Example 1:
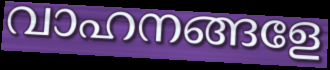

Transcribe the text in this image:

വാഹനങ്ങളേ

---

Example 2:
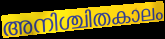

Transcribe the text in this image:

അനിശ്ചിതകാലം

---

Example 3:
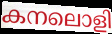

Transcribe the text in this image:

കനലൊളി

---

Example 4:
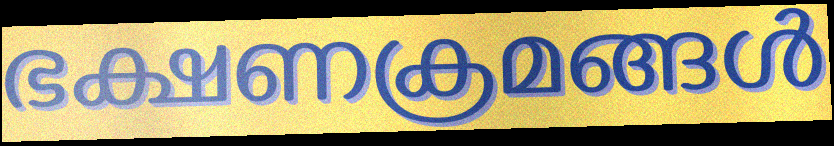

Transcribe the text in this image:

ഭക്ഷണക്രമങ്ങൾ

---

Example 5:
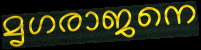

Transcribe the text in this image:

മൃഗരാജനെ